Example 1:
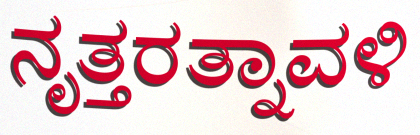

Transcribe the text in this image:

ನೃತ್ತರತ್ನಾವಳಿ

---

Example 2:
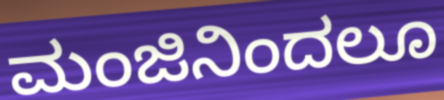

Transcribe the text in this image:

ಮಂಜಿನಿಂದಲೂ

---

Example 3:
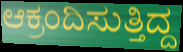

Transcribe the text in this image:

ಆಕ್ರಂದಿಸುತ್ತಿದ್ದ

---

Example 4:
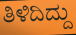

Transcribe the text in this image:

ತಿಳಿದಿದ್ದು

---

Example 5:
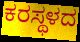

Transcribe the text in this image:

ಕರಸ್ಥಳದ